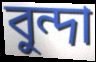
বুন্দা